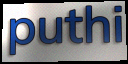
puthi